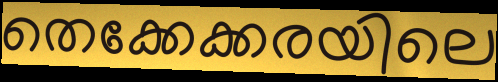
തെക്കേക്കരയിലെ